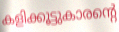
കളിക്കൂട്ടുകാരന്റെ